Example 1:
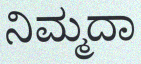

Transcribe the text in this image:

ನಿಮ್ಮದಾ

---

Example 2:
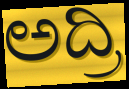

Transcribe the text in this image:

ಅದ್ರಿ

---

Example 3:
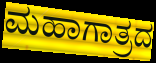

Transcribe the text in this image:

ಮಹಾಗಾತ್ರದ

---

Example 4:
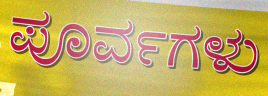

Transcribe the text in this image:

ಪೂರ್ವಗಳು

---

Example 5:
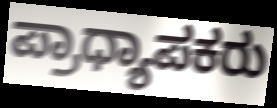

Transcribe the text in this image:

ಪ್ರಾಧ್ಯಾಪಕರು